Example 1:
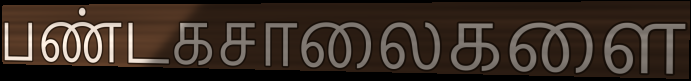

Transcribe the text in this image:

பண்டகசாலைகளை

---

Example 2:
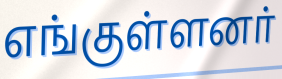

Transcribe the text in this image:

எங்குள்ளனர்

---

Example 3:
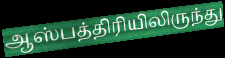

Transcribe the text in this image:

ஆஸ்பத்திரியிலிருந்து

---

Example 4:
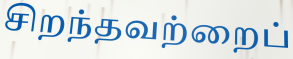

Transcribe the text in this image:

சிறந்தவற்றைப்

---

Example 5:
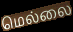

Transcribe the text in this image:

மெல்லை